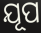
ଯୂପ